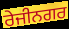
ਰੇਜੀਨਗਰ